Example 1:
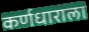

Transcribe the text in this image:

कर्णधाराला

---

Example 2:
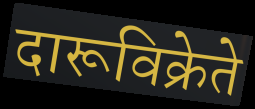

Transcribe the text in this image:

दारूविक्रेते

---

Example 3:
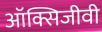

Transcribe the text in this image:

ऑक्सिजीवी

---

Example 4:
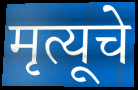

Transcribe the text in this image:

मृत्यूचे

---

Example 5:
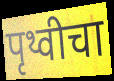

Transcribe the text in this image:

पृथ्वीचा